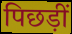
पिछड़ीं